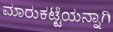
ಮಾರುಕಟ್ಟೆಯನ್ನಾಗಿ